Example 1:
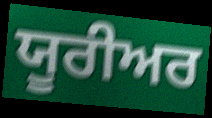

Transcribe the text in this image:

ਯੂਰੀਅਰ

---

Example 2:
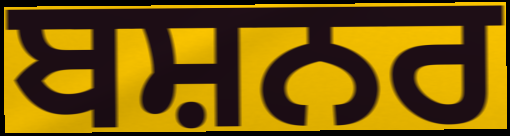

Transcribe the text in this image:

ਬਸ਼ਨਰ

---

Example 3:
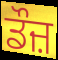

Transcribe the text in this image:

ਡੌਜ਼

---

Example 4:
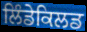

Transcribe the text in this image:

ਲਿੰਡੇਕਿਲਡ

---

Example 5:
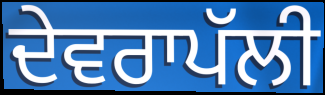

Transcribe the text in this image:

ਦੇਵਰਾਪੱਲੀ